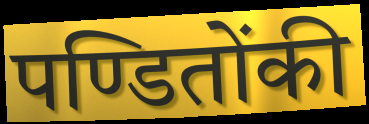
पण्डितोंकी